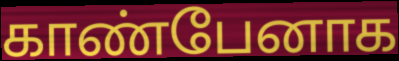
காண்பேனாக